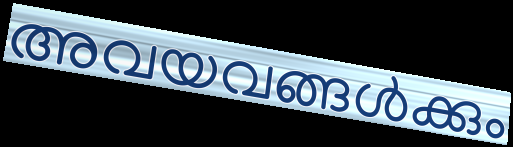
അവയവങ്ങൾക്കും